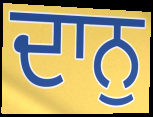
ਦਾਨੁ